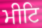
ਮੀਟਿ